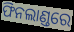
ଫିନଲାଣ୍ଡରେ